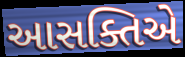
આસક્તિએ